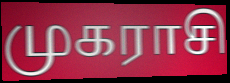
முகராசி